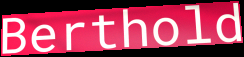
Berthold